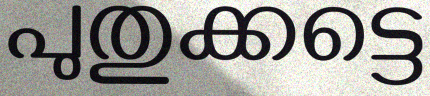
പുതുക്കട്ടെ